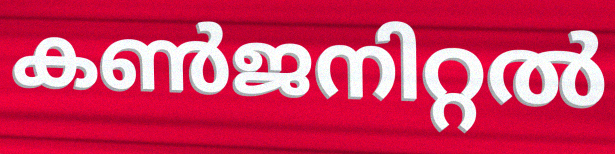
കൺജനിറ്റൽ